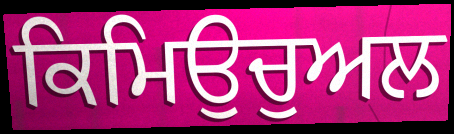
ਕਿਮਿਉਚੁਅਲ